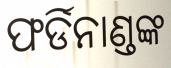
ଫର୍ଡିନାଣ୍ଡଙ୍କ